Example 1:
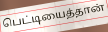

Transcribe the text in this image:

பெட்டியைத்தான்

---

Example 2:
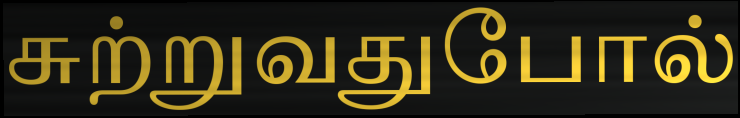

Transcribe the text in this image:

சுற்றுவதுபோல்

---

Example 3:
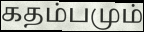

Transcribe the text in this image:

கதம்பமும்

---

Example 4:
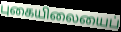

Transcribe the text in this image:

புகையிலையைப்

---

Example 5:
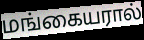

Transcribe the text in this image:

மங்கையரால்